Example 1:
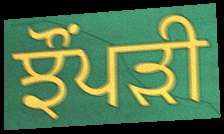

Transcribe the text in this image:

ਝੌਂਪੜੀ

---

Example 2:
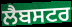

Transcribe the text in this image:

ਲੈਬਸਟਰ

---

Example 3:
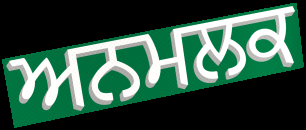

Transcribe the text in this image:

ਅਨਮਲਕ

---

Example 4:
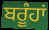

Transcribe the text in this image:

ਬਰੂੰਹਾਂ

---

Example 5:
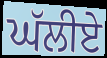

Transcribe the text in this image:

ਘੱਲੀਏ